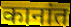
कानांत